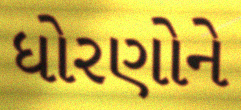
ધોરણોને